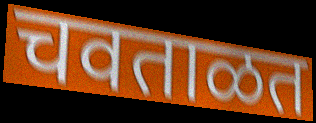
चवताळत